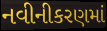
નવીનીકરણમાં